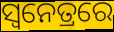
ସ୍ୱନେତ୍ରରେ